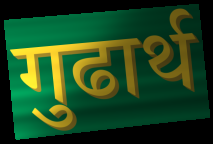
गुढार्थ